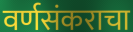
वर्णसंकराचा